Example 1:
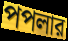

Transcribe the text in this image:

পপলার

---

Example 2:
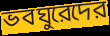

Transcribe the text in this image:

ভবঘুরেদের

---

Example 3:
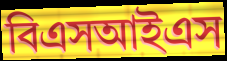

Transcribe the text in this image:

বিএসআইএস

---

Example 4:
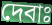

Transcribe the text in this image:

দেবাঃ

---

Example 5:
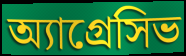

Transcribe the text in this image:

অ্যাগ্রেসিভ